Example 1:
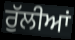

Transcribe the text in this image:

ਰੁੱਲੀਆਂ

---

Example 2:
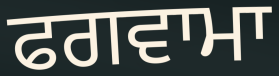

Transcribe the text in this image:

ਫਗਵਾਮਾ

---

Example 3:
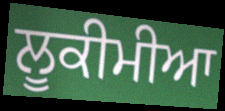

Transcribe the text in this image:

ਲੂਕੀਮੀਆ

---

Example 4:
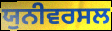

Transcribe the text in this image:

ਯੁਨੀਵਰਸਲ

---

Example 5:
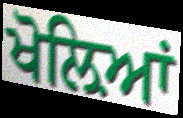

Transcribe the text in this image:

ਖੋਲ਼ਿਆਂ